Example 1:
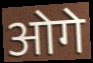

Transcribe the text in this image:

ओगे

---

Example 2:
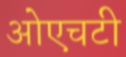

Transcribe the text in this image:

ओएचटी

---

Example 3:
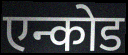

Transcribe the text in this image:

एन्कोड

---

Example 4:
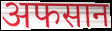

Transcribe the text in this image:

अफसान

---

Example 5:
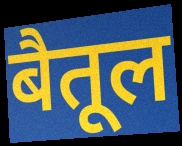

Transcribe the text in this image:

बैतूल